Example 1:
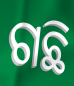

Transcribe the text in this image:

ଗଛି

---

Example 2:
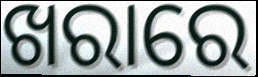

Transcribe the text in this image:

ଖରାରେ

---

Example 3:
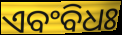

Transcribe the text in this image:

ଏବଂବିଧଃ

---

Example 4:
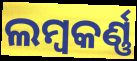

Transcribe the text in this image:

ଲମ୍ୱକର୍ଣ୍ଣ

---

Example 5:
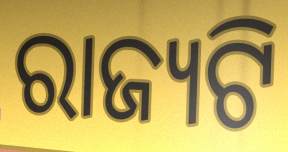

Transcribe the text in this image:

ରାଜ୍ୟଟି